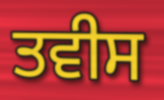
ਤਵੀਸ